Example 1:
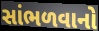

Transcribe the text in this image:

સાંભળવાનો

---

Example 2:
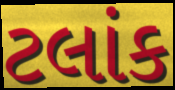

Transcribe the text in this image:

ટલાંક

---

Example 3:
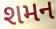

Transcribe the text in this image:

શમન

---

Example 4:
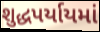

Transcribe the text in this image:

શુદ્ધપર્યાયમાં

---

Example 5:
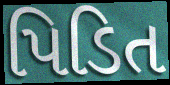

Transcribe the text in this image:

પિડિત